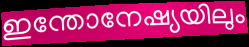
ഇന്തോനേഷ്യയിലും